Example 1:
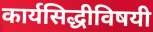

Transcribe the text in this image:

कार्यसिद्धीविषयी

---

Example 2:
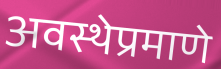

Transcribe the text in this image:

अवस्थेप्रमाणे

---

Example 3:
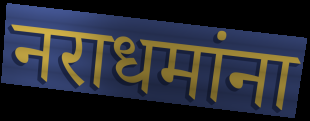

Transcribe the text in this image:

नराधमांना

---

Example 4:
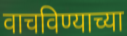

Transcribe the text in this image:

वाचविण्याच्या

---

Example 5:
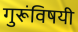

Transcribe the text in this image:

गुरूंविषयी